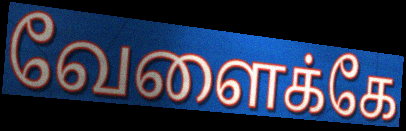
வேளைக்கே